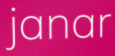
janar